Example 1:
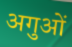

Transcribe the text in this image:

अगुओं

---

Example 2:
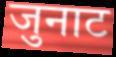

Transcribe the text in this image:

जुनाट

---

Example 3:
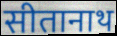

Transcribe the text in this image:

सीतानाथ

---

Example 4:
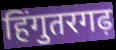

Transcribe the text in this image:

हिंगुतरगढ़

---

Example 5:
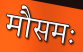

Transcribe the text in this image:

मौसमः